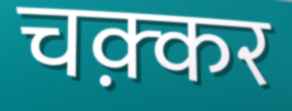
चक़्कर